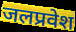
जलप्रवेश